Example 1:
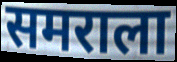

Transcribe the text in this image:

समराला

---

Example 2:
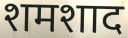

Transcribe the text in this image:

शमशाद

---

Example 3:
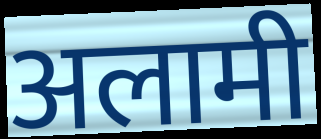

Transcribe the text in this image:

अलामी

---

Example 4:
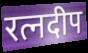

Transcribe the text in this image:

रत्नदीप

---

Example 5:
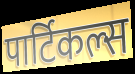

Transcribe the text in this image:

पार्टिकल्‍स